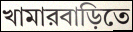
খামারবাড়িতে